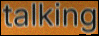
talking